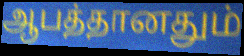
ஆபத்தானதும்